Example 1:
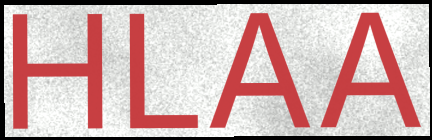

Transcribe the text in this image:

HLAA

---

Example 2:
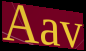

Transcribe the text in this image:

Aav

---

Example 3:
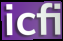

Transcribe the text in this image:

icfi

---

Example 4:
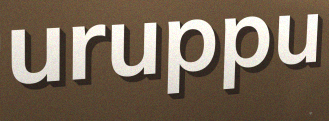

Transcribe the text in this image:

uruppu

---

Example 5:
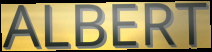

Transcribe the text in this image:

ALBERT